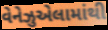
વેનેઝુએલામાંથી